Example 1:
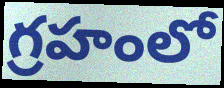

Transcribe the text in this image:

గ్రహంలో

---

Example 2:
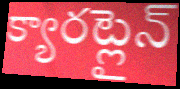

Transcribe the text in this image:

క్యారట్లైన్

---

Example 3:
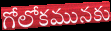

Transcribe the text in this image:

గోలోకమునకు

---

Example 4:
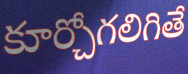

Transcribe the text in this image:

కూర్చోగలిగితే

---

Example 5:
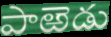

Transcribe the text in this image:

పాఱెడు